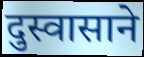
दुस्वासाने